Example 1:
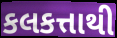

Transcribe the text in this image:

કલકત્તાથી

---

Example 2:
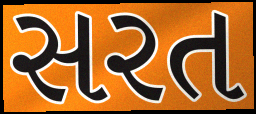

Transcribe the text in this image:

સરત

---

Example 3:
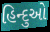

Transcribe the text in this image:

હિન્દુઓ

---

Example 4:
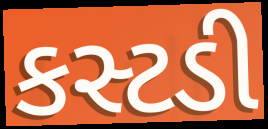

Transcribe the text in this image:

કસ્ટડી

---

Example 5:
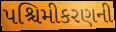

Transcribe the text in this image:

પશ્ચિમીકરણની